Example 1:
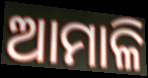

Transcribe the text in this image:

ଆମାଳି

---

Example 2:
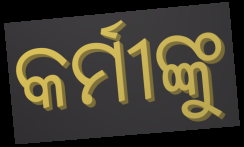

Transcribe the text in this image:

କର୍ମୀଙ୍କୁ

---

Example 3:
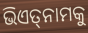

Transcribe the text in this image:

ଭିଏତ୍‌ନାମକୁ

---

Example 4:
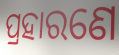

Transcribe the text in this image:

ପ୍ରହାରଣେ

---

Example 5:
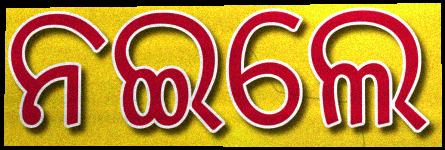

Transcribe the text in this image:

ନଇଲେ